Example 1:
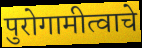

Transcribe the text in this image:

पुरोगामीत्वाचे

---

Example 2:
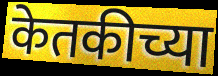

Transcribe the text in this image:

केतकीच्या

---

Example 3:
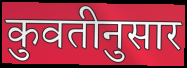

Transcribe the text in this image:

कुवतीनुसार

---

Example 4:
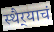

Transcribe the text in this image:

स्थैर्याचं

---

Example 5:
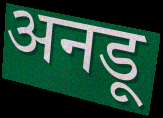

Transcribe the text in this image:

अनडू